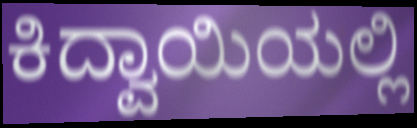
ಕಿದ್ವಾಯಿಯಲ್ಲಿ